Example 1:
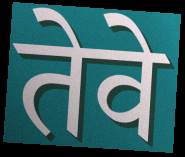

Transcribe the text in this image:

तेवे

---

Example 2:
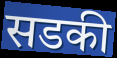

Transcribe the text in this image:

सडकी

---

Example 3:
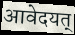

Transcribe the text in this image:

आवेदयत्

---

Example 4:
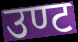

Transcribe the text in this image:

उण्ट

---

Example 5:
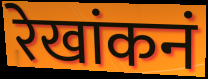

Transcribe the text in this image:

रेखांकनं